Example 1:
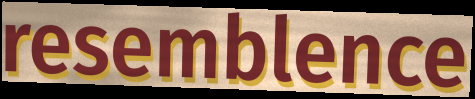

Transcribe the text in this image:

resemblence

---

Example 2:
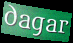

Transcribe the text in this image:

dagar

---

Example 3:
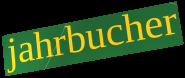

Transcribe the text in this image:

jahrbucher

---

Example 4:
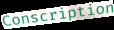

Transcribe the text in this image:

Conscription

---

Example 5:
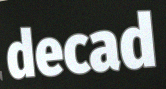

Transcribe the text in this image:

decad